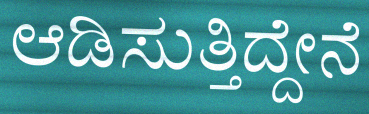
ಆಡಿಸುತ್ತಿದ್ದೇನೆ